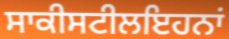
ਸਾਕੀਸਟੀਲਇਹਨਾਂ